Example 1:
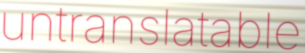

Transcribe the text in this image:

untranslatable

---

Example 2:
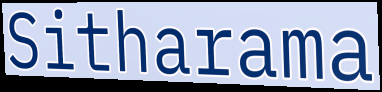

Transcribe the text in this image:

Sitharama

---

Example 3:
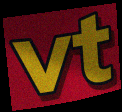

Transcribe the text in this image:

vt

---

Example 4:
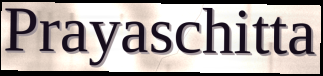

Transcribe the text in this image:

Prayaschitta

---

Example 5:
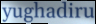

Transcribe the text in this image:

yughadiru